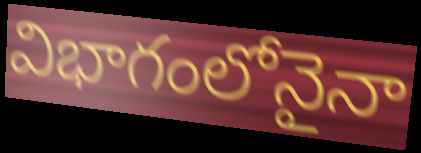
విభాగంలోనైనా